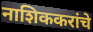
नाशिककरांचे